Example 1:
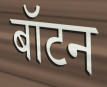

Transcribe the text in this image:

बॉटन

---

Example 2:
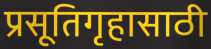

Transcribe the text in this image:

प्रसूतिगृहासाठी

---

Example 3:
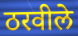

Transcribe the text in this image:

ठरवीले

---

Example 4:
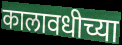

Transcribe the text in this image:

कालावधीच्या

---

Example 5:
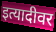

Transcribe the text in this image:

इत्यादीवर